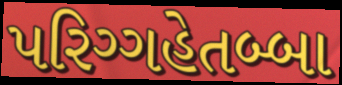
પરિગ્ગહેતબ્બા